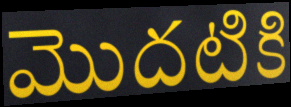
మొదటికి